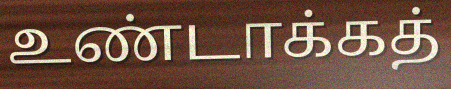
உண்டாக்கத்